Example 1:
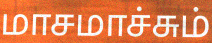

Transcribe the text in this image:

மாசமாச்சும்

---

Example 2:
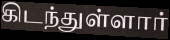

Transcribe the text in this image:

கிடந்துள்ளார்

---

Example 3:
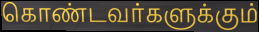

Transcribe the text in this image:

கொண்டவர்களுக்கும்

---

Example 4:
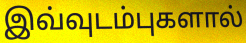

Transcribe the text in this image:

இவ்வுடம்புகளால்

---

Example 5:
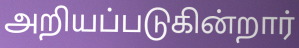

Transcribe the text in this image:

அறியப்படுகின்றார்